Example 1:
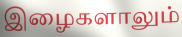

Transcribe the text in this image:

இழைகளாலும்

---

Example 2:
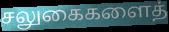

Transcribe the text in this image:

சலுகைகளைத்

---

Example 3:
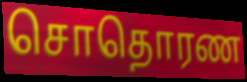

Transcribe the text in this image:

சொதொரண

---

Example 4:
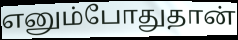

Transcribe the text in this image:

எனும்போதுதான்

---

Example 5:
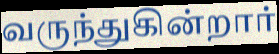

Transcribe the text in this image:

வருந்துகின்றார்